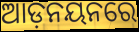
ଆଡ଼ନୟନରେ